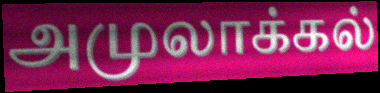
அமுலாக்கல்